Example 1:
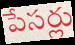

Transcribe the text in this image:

పేసర్లు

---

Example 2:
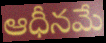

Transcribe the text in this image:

ఆధీనమే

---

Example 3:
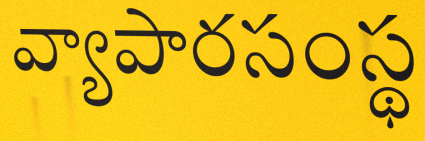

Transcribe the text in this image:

వ్యాపారసంస్థ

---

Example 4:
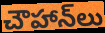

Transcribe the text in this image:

చౌహాన్‌లు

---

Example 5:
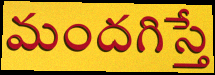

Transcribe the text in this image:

మందగిస్తే